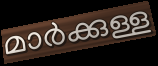
മാർക്കുള്ള